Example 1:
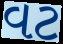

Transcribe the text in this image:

વટ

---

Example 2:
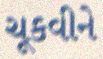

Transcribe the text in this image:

ચૂકવીને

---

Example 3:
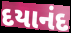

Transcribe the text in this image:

દયાનંદ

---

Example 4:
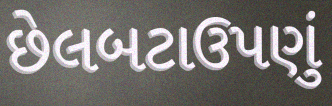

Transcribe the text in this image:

છેલબટાઉપણું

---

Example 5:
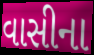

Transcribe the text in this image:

વાસીના